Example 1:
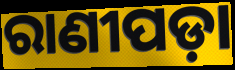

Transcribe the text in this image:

ରାଣୀପଡ଼ା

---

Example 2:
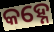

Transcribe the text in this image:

କହ୍ନେ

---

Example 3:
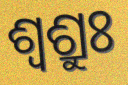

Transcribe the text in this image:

ଶ୍ଵଶ୍ରୁଃ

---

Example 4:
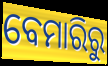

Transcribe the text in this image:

ବେମାରିରୁ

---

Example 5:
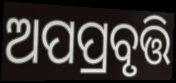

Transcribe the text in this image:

ଅପପ୍ରବୃତ୍ତି